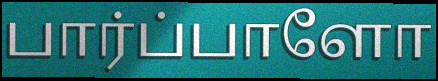
பார்ப்பாளோ